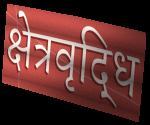
क्षेत्रवृद्धि